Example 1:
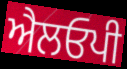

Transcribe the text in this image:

ਐਲਓਪੀ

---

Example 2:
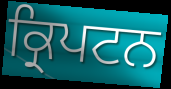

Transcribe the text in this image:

ਕ੍ਰਿਪਟਨ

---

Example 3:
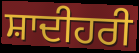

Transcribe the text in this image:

ਸ਼ਾਦੀਹਰੀ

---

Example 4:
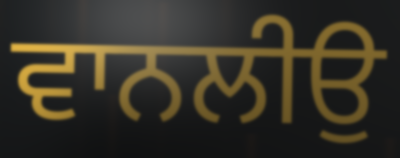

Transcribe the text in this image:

ਵਾਨਲੀਉ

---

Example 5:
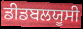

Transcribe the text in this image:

ਡੀਡਬਲਯੂਸੀ